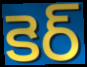
కెర్